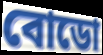
বোডো